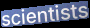
scientists